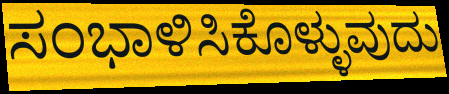
ಸಂಭಾಳಿಸಿಕೊಳ್ಳುವುದು